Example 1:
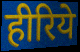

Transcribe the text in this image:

हीरिये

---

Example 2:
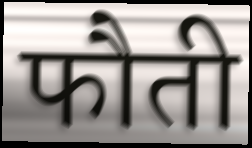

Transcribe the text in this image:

फौती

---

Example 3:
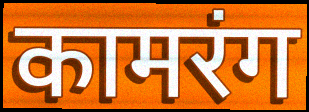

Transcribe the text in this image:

कामरंग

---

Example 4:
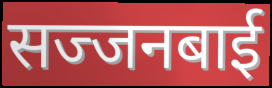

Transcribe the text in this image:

सज्जनबाई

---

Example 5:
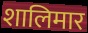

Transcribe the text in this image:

शालिमार